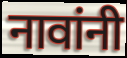
नावांनी